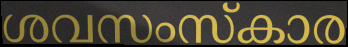
ശവസംസ്കാര